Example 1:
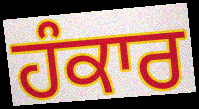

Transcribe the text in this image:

ਹੰਕਾਰ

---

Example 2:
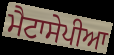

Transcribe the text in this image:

ਮੈਟਾਸੇਪੀਆ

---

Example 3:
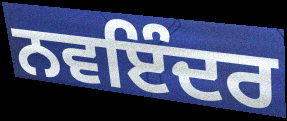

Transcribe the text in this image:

ਨਵਇੰਦਰ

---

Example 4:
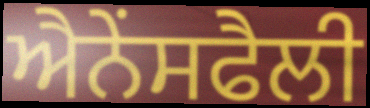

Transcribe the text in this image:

ਐਨੇਂਸਫੈਲੀ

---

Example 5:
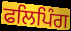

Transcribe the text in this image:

ਫਲਿਪਿੰਗ